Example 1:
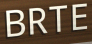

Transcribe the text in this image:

BRTE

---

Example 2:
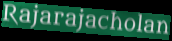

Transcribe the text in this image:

Rajarajacholan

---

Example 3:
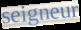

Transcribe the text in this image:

seigneur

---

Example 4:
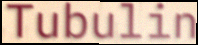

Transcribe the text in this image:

Tubulin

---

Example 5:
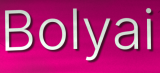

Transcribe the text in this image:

Bolyai